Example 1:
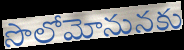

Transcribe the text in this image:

సొలోమోనునకు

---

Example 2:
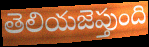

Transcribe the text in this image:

తెలియజెప్తుంది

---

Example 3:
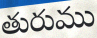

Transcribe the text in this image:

తురుము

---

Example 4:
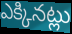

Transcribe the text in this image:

ఎక్కినట్లు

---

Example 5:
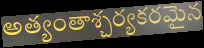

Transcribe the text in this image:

అత్యంతాశ్చర్యకరమైన